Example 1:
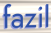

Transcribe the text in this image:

fazil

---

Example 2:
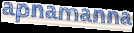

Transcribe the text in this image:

apnamanna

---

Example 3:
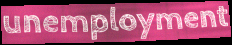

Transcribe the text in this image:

unemployment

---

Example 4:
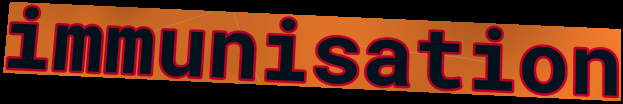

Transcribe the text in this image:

immunisation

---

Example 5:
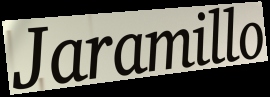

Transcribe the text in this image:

Jaramillo